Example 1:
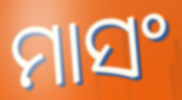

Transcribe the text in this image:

ମାସଂ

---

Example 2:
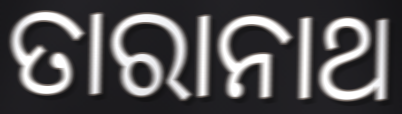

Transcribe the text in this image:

ତାରାନାଥ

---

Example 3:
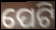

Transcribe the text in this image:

ପେଟି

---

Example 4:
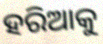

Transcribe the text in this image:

ହରିଆକୁ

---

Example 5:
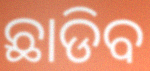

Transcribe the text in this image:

ଛାଡିବ